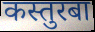
कस्तुरबा